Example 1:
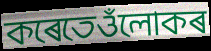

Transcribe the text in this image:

কৰেতেওঁলোকৰ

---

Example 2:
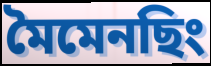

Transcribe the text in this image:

মৈমেনছিং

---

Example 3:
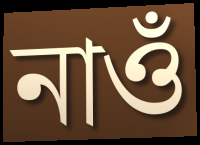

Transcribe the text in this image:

নাওঁ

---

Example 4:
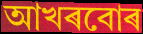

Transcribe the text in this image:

আখৰবোৰ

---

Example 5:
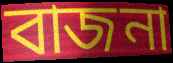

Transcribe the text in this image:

বাজনা